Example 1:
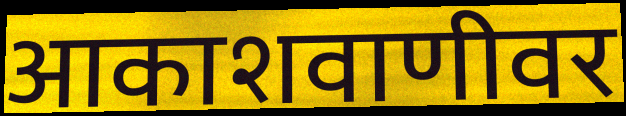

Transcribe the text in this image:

आकाशवाणीवर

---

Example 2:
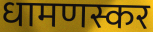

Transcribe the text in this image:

धामणस्कर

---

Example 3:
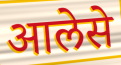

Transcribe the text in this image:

आलेसे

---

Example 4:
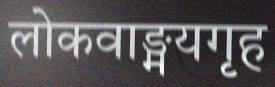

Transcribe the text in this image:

लोकवाङ्मयगृह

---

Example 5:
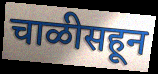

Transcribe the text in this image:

चाळीसहून